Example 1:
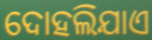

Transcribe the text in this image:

ଦୋହଲିଯାଏ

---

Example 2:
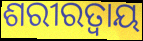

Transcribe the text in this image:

ଶରୀରତ୍ୱାୟ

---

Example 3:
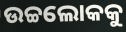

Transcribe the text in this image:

ଉଚ୍ଚଲୋକକୁ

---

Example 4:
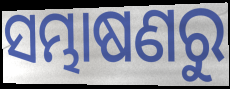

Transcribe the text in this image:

ସମ୍ଭାଷଣରୁ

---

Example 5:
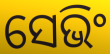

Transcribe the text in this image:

ସେଭିଂ